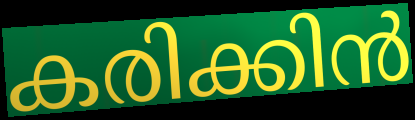
കരിക്കിൻ